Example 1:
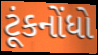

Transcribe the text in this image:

ટૂંકનોંધો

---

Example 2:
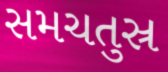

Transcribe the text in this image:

સમચતુસ્ર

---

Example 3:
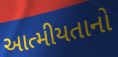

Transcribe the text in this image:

આત્મીયતાનો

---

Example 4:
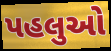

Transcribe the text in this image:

પહલુઓ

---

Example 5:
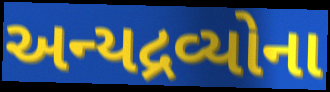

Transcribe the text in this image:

અન્યદ્રવ્યોના